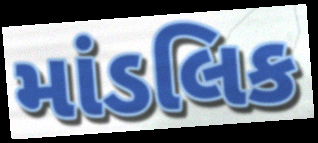
માંડલિક